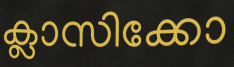
ക്ലാസിക്കോ